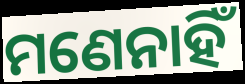
ମଣେନାହିଁ